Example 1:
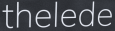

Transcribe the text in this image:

thelede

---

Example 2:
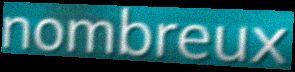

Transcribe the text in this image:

nombreux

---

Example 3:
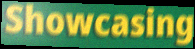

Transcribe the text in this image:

Showcasing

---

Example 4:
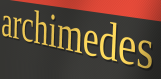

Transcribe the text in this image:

archimedes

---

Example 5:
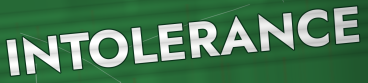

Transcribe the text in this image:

INTOLERANCE